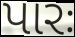
પારઃ